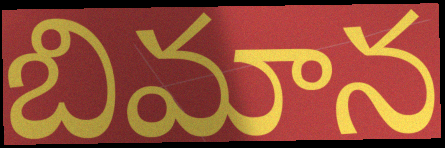
బిమాన